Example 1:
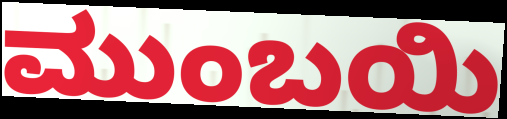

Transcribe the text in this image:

ಮುಂಬಯಿ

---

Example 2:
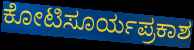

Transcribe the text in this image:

ಕೋಟಿಸೂರ್ಯಪ್ರಕಾಶ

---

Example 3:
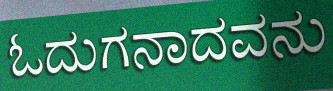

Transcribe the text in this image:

ಓದುಗನಾದವನು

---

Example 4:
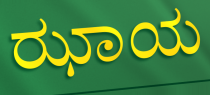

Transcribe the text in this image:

ಝಾಯ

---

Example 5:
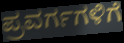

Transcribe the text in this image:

ಪ್ರವರ್ಗಗಳಿಗೆ